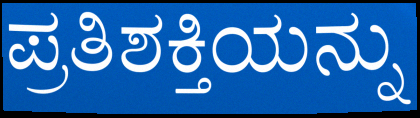
ಪ್ರತಿಶಕ್ತಿಯನ್ನು